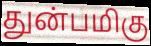
துன்பமிகு